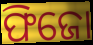
ଫିଜୋ